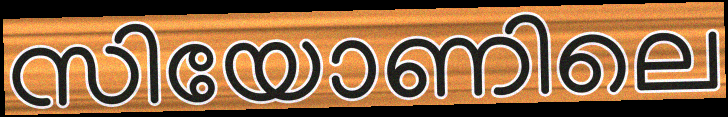
സിയോണിലെ